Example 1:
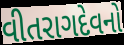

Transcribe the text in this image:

વીતરાગદેવનો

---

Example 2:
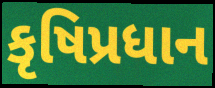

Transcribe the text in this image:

કૃષિપ્રધાન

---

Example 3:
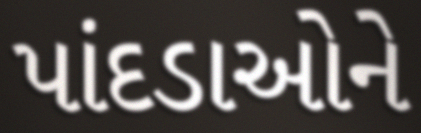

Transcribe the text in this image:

પાંદડાઓને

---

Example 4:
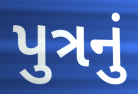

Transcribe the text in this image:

પુત્રનું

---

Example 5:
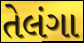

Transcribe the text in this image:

તેલંગા